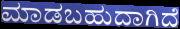
ಮಾಡಬಹುದಾಗಿದೆ